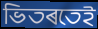
ভিতৰতেই